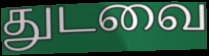
துடவை